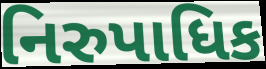
નિરુપાધિક